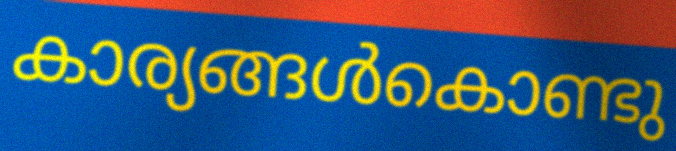
കാര്യങ്ങൾകൊണ്ടു